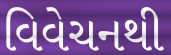
વિવેચનથી